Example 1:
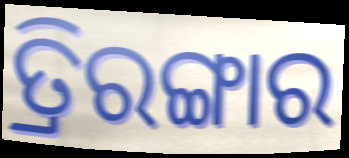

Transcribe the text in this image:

ତ୍ରିରଙ୍ଗାର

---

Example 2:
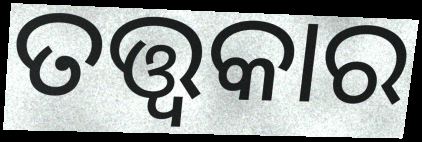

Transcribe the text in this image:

ତତ୍ତ୍ୱକାର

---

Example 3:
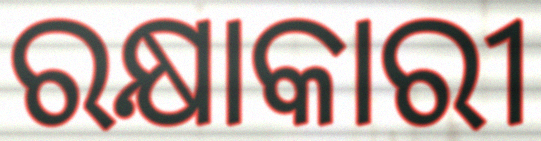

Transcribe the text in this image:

ରକ୍ଷାକାରୀ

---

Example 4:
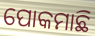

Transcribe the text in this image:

ପୋକମାଛି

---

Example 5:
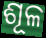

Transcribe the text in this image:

ଶୂଳ